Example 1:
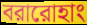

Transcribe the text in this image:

বরারোহাং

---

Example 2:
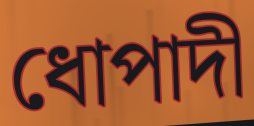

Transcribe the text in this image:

ধোপাদী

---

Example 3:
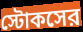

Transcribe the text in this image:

স্টোকসের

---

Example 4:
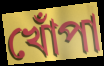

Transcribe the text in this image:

খোঁপা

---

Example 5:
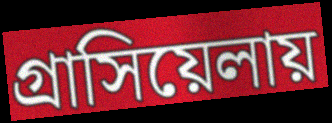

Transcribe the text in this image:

গ্রাসিয়েলায়